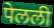
पेलली